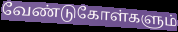
வேண்டுகோள்களும்